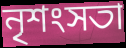
নৃশংসতা